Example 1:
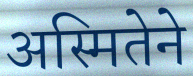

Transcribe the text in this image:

अस्मितेने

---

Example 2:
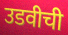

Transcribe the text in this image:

उडवीची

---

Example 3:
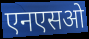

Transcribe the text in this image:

एनएसओ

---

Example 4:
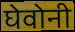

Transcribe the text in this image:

घेवोनी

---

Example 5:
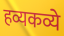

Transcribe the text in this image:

हव्यकव्ये